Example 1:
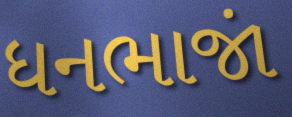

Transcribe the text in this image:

ધનભાજાં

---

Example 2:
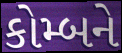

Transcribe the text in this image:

કોમ્બને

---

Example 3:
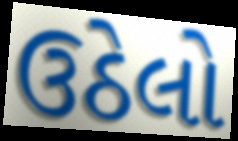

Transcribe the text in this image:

ઉઠેલો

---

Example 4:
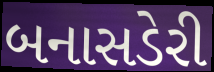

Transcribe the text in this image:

બનાસડેરી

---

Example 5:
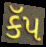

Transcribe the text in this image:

કૅપ